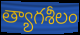
త్యాగశీలం